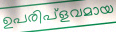
ഉപരിപ്ളവമായ